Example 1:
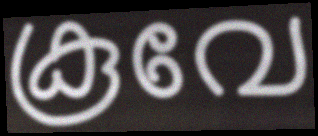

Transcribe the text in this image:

കൂവേ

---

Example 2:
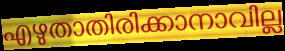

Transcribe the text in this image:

എഴുതാതിരിക്കാനാവില്ല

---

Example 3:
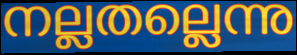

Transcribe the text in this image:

നല്ലതല്ലെന്നു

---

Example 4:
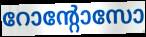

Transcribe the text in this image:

റോന്റോസോ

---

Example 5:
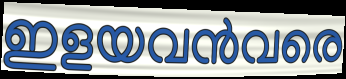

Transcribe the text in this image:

ഇളയവൻവരെ